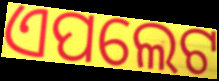
ଏପଲେଟ